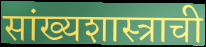
सांख्यशास्त्राची